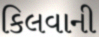
કિલવાની